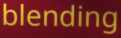
blending